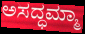
ಅಸದ್ಧಮ್ಮಾ